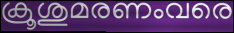
ക്രൂശുമരണംവരെ